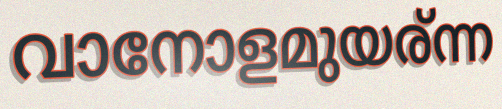
വാനോളമുയര്ന്ന